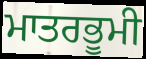
ਮਾਤਰਭੂਮੀ